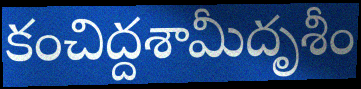
కంచిద్దశామీదృశీం